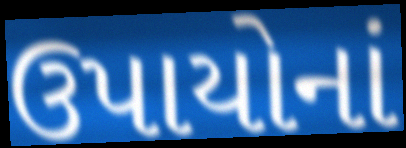
ઉપાયોનાં